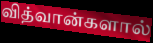
வித்வான்களால்